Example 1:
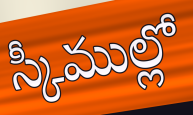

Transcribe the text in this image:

స్కీముల్లో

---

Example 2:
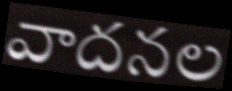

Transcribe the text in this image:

వాదనల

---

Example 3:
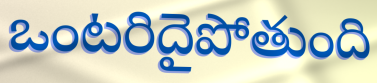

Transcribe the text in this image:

ఒంటరిదైపోతుంది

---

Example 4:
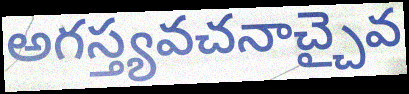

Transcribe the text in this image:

అగస్త్యవచనాచ్చైవ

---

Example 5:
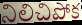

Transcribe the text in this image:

నిలిచిపోక